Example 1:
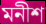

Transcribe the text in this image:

মনীশ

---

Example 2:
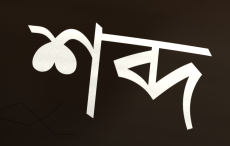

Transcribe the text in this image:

শব্দ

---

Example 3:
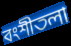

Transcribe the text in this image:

বংশীতলা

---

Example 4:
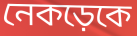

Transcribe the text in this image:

নেকড়েকে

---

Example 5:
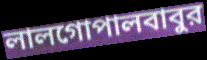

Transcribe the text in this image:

লালগোপালবাবুর